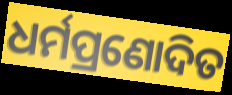
ଧର୍ମପ୍ରଣୋଦିତ